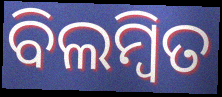
ବିଲମ୍ବିତ